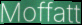
Moffatt